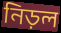
নিড়ল